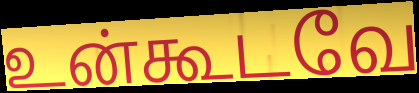
உன்கூடவே